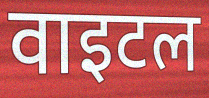
वाइटल